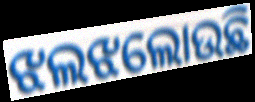
ଝଲଝଲୋଉଛି